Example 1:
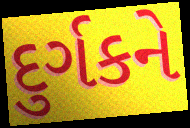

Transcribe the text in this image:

દુર્ગકને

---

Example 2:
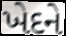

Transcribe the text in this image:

ખેદને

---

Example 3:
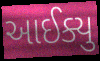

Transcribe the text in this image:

આઈક્યુ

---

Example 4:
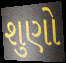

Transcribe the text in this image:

શુણો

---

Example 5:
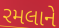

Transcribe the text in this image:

રમલાને